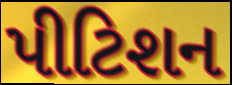
પીટિશન